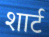
शार्ट